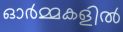
ഓർമ്മകളിൽ